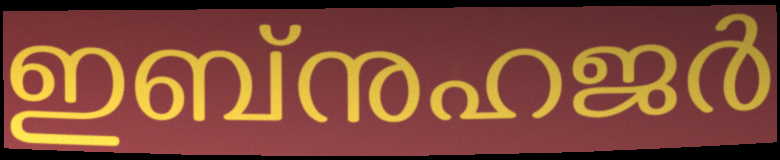
ഇബ്നുഹജർ